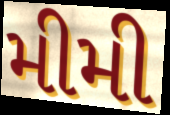
મીમી